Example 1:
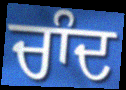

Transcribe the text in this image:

ਚਾੰਦ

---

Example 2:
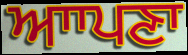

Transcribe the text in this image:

ਆਾਪਣਾ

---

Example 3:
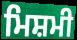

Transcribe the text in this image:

ਮਿਸ਼ਮੀ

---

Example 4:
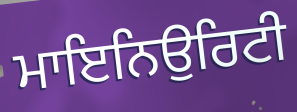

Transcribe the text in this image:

ਮਾਇਨਿਉਰਿਟੀ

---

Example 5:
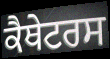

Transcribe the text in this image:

ਕੈਥੇਟਰਸ